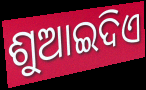
ଶୁଆଇଦିଏ